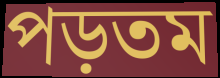
পড়তম